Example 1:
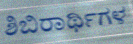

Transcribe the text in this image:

ಶಿಬಿರಾರ್ಥಿಗಳ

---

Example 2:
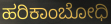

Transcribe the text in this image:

ಹರಿಕಾಂಬೋಧಿ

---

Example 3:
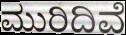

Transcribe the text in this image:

ಮುರಿದಿವೆ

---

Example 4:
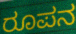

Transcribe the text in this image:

ರೂಪನ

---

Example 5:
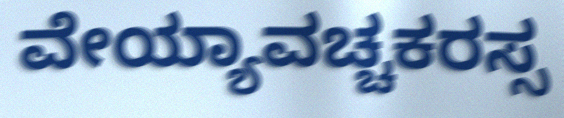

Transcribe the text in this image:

ವೇಯ್ಯಾವಚ್ಚಕರಸ್ಸ